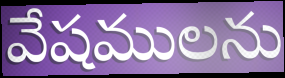
వేషములను